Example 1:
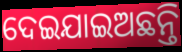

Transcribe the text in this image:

ଦେଇଯାଇଅଛନ୍ତି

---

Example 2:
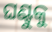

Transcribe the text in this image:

ଘଣ୍ଟୁକୁ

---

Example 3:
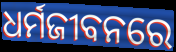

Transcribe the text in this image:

ଧର୍ମଜୀବନରେ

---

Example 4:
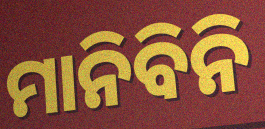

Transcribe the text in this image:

ମାନିବିନି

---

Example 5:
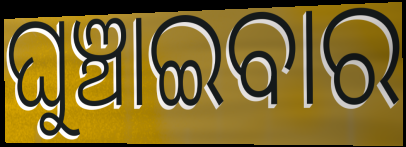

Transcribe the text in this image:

ଘୁଞ୍ଚାଇବାର